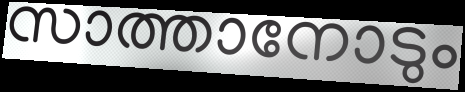
സാത്താനോടും